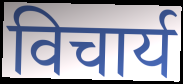
विचार्य